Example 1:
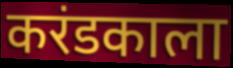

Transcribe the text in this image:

करंडकाला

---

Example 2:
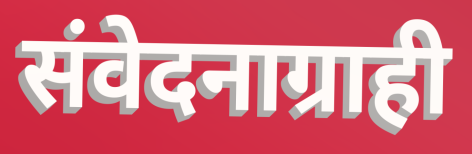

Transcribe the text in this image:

संवेदनाग्राही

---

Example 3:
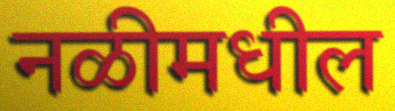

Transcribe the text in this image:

नळीमधील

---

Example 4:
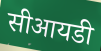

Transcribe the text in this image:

सीआयडी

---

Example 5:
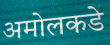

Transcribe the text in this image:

अमोलकडे